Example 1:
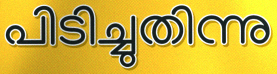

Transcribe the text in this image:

പിടിച്ചുതിന്നു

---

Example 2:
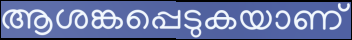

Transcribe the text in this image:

ആശങ്കപ്പെടുകയാണ്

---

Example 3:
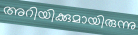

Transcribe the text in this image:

അറിയിക്കുമായിരുന്നു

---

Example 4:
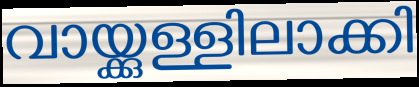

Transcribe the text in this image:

വായ്ക്കുള്ളിലാക്കി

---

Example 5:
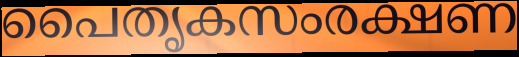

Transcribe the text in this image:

പൈതൃകസംരക്ഷണ